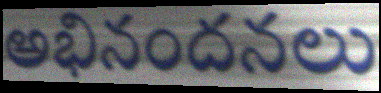
అభినందనలు